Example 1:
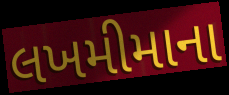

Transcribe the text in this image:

લખમીમાના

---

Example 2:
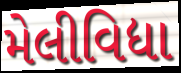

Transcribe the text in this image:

મેલીવિદ્યા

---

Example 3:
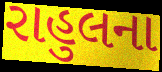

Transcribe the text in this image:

રાહુલના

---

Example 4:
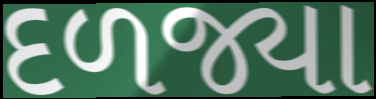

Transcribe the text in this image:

દળજ્યા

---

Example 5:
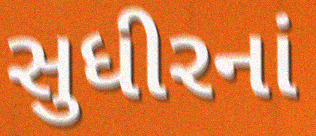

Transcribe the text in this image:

સુધીરનાં